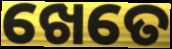
ଖେତେ